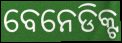
ବେନେଡିକ୍ଟ